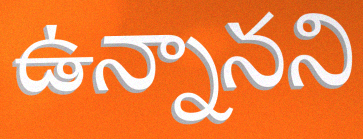
ఉన్నానని